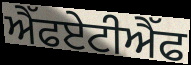
ਐੱਫਏਟੀਐੱਫ